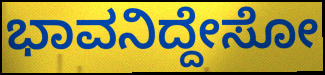
ಭಾವನಿದ್ದೇಸೋ